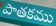
పాతకము